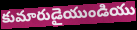
కుమారుడైయుండియు